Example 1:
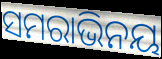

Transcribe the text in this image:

ସମରାଭିନୟ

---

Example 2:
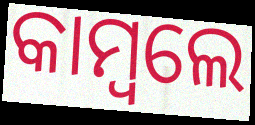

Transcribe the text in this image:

କାମ୍ବଲେ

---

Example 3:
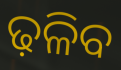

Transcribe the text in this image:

ଢ଼ଳିବ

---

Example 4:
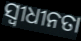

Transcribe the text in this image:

ସ୍ୱୀଧୀନତା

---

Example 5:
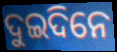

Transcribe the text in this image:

ଦୁଇଦିନେ